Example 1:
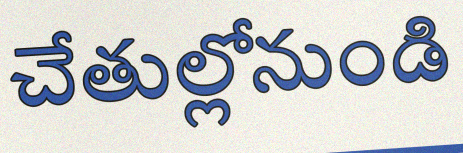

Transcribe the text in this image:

చేతుల్లోనుండి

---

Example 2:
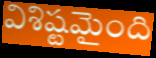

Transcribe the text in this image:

విశిష్టమైంది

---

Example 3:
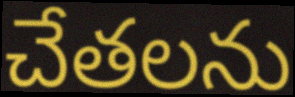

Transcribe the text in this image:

చేతలను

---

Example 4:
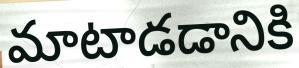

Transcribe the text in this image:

మాటాడడానికి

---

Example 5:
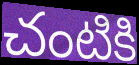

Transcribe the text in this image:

చంటికి